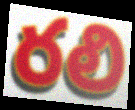
రలి